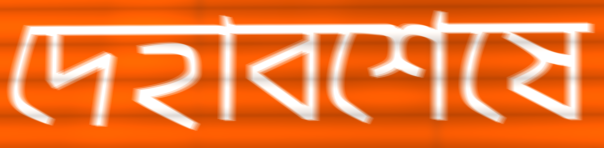
দেহাবশেষে